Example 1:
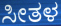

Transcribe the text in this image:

ಸೀತಳ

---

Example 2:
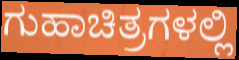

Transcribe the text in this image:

ಗುಹಾಚಿತ್ರಗಳಲ್ಲಿ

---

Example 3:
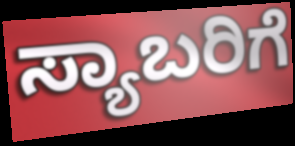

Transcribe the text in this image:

ಸ್ಯಾಬರಿಗೆ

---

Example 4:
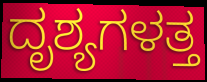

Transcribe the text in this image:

ದೃಶ್ಯಗಳತ್ತ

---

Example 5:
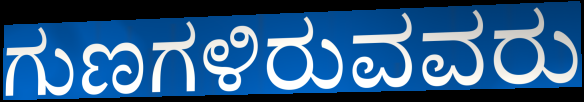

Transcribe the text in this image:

ಗುಣಗಳಿರುವವರು